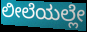
ಲೀಲೆಯಲ್ಲೇ